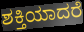
ಶಕ್ತಿಯಾದರೆ